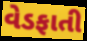
વેડફાતી